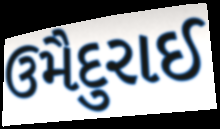
ઉમૈદુરાઈ